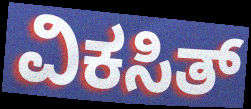
ವಿಕಸಿತ್